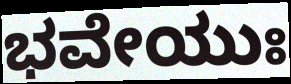
ಭವೇಯುಃ